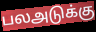
பலஅடுக்கு